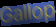
Gallop